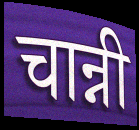
चान्नी